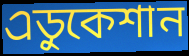
এডুকেশান